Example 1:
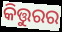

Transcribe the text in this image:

କିତ୍ତୁରର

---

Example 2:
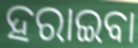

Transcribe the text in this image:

ହରାଇବା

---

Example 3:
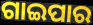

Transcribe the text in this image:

ଗାଇପାର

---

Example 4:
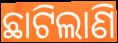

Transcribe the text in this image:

ଛାଟିଲାଣି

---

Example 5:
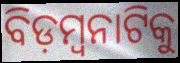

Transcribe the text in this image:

ବିଡ଼ମ୍ବନାଟିକୁ